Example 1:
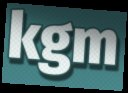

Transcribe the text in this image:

kgm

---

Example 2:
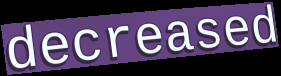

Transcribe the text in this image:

decreased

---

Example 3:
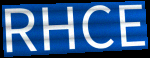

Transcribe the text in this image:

RHCE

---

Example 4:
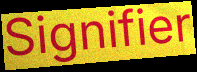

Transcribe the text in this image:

Signifier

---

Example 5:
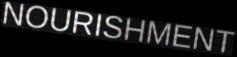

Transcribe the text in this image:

NOURISHMENT